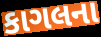
કાગલના